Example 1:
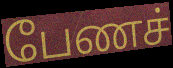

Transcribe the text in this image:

பேணச்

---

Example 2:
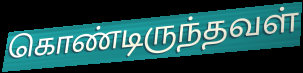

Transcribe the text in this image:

கொண்டிருந்தவள்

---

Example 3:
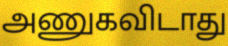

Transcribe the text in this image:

அணுகவிடாது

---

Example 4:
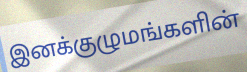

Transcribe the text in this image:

இனக்குழுமங்களின்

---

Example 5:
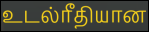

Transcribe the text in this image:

உடல்ரீதியான